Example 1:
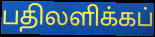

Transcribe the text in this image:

பதிலளிக்கப்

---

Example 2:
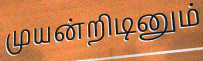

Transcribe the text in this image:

முயன்றிடினும்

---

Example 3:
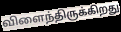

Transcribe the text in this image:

விளைந்திருக்கிறது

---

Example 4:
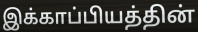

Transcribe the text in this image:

இக்காப்பியத்தின்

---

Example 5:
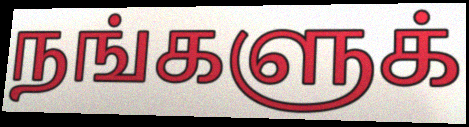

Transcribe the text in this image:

நங்களுக்